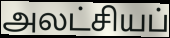
அலட்சியப்